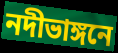
নদীভাঙ্গনে